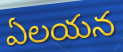
ఏలయన